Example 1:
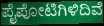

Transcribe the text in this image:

ಪೈಪೋಟಿಗಿಳಿದಿವೆ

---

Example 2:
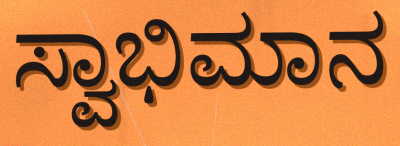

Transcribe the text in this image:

ಸ್ವಾಭಿಮಾನ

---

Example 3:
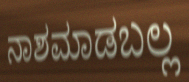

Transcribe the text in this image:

ನಾಶಮಾಡಬಲ್ಲ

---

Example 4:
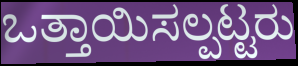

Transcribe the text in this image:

ಒತ್ತಾಯಿಸಲ್ಪಟ್ಟರು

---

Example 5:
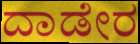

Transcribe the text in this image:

ದಾಡೇರ